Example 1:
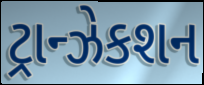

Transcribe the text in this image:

ટ્રાન્ઝેકશન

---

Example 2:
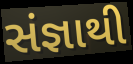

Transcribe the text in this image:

સંજ્ઞાથી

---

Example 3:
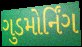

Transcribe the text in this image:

ગુડમોર્નિંગ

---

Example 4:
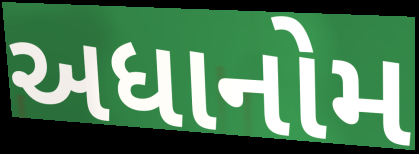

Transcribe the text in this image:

અધાનોમ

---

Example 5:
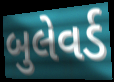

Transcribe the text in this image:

બુલેવર્ડ